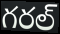
గరల్